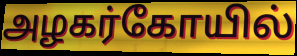
அழகர்கோயில்